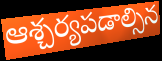
ఆశ్చర్యపడాల్సిన